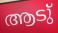
ആടു്